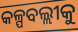
କଳ୍ପବଲ୍ଲୀକୁ